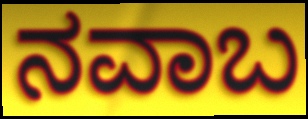
ನವಾಬ